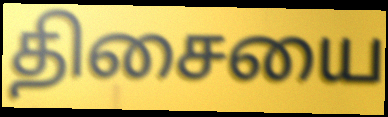
திசையை